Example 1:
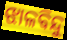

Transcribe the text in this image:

ଝାଳବିନ୍ଦୁ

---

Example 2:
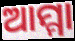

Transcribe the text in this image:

ଆମ୍ମା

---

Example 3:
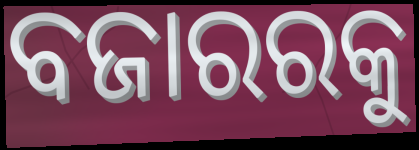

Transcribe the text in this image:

ବଜାରରକୁ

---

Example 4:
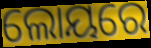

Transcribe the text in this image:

ଲୋୟରେ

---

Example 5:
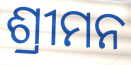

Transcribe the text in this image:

ଶ୍ରୀମନ